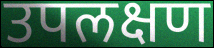
उपलक्षण